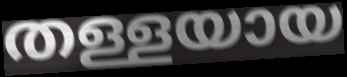
തള്ളയായ